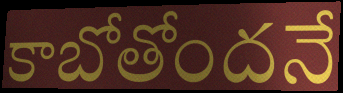
కాబోతోందనే